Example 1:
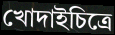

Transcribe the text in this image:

খোদাইচিত্রে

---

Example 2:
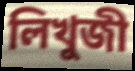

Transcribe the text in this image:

লিখুজী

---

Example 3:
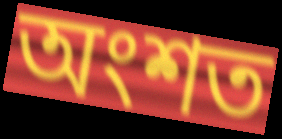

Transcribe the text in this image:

অংশত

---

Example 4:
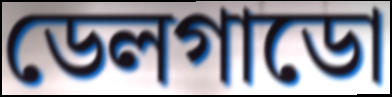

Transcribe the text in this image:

ডেলগাডো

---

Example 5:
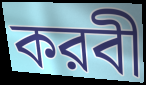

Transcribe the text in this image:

করবী